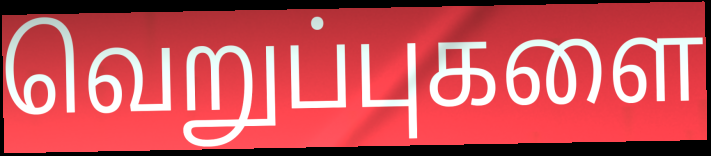
வெறுப்புகளை